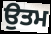
ਉਤਮ